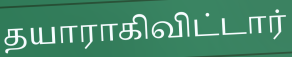
தயாராகிவிட்டார்